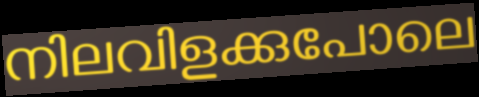
നിലവിളക്കുപോലെ